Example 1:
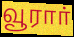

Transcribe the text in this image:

வூரார்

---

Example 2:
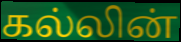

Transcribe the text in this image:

கல்லின்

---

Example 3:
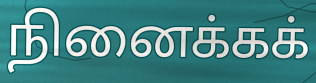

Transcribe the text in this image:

நினைக்கக்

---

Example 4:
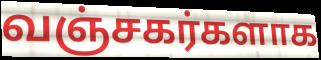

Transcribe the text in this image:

வஞ்சகர்களாக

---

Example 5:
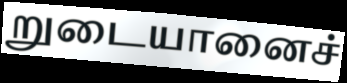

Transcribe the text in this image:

றுடையானைச்